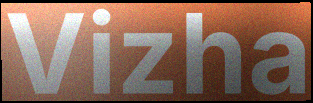
Vizha